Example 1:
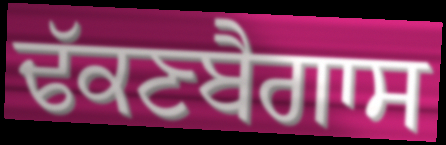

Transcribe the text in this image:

ਢੱਕਣਬੈਗਾਸ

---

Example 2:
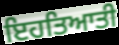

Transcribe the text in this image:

ਇਹਤਿਆਤੀ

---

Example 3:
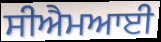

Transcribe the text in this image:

ਸੀਐਮਆਈ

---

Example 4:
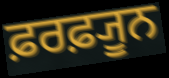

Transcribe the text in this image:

ਫ਼ਰਫ਼੍ਯੂਨ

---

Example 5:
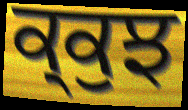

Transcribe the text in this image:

ਕ੍ਕੁਝ